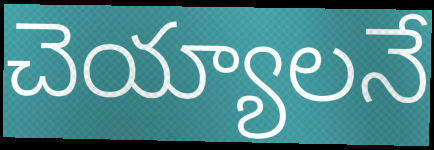
చెయ్యాలనే